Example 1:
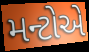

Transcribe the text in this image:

મન્ટોએ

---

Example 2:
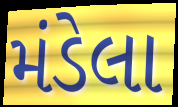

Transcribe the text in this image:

મંડેલા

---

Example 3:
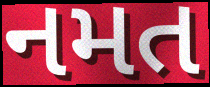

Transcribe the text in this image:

નમત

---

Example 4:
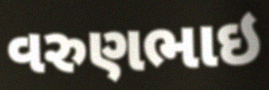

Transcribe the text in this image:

વરુણભાઇ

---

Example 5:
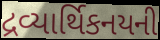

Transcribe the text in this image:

દ્રવ્યાર્થિકનયની